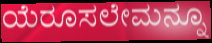
ಯೆರೂಸಲೇಮನ್ನೂ